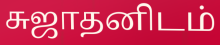
சுஜாதனிடம்